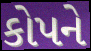
કોપને